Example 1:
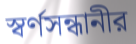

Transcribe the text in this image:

স্বর্ণসন্ধানীর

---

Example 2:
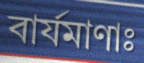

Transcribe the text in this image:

বার্যমাণাঃ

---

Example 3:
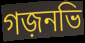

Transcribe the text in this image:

গজ়নভি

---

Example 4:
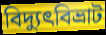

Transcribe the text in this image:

বিদ্যুৎবিভ্রাট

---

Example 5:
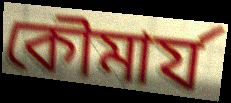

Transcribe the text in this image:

কৌমার্য